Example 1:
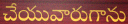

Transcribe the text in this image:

చేయువారుగాను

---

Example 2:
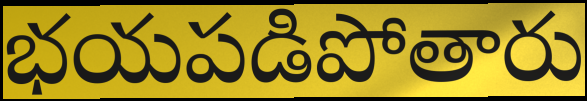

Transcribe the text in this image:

భయపడిపోతారు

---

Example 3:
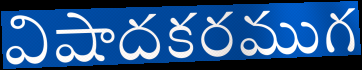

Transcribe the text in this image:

విషాదకరముగ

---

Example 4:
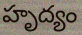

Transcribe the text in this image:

హృద్యం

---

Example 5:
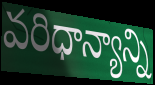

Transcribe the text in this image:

వరిధాన్యాన్ని